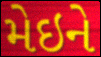
મેઇને